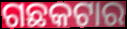
ଗଛକଟାର